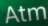
Atm